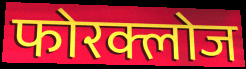
फोरक्लोज